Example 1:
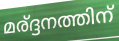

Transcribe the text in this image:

മര്ദ്ദനത്തിന്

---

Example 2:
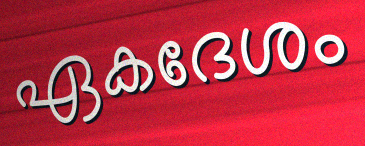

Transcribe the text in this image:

ഏകദേശം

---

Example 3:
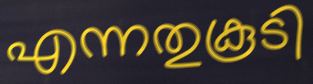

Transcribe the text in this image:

എന്നതുകൂടി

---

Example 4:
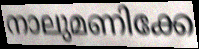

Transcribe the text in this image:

നാലുമണിക്കേ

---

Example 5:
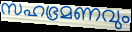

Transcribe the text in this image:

സഹഭ്രമണവും